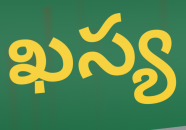
ఖస్య